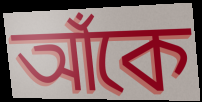
আঁকে